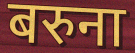
बरुना